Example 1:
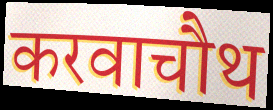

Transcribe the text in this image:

करवाचौथ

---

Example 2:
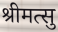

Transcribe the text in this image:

श्रीमत्सु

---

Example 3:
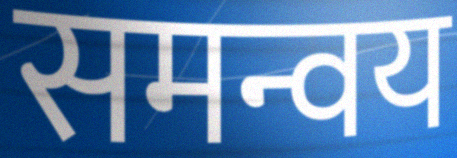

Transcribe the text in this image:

समन्वय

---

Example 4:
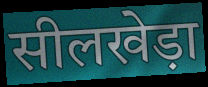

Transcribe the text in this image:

सीलखेड़ा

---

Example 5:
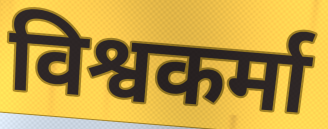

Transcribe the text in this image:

विश्वकर्मा